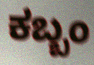
ಕಬ್ಬಂ